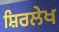
ਸ਼ਿਰਲੇਖ